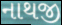
નાથજી